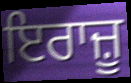
ਇਰਾਜ਼ੂ